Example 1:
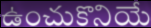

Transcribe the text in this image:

ఉంచుకొనియే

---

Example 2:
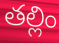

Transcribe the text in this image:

తల్లిం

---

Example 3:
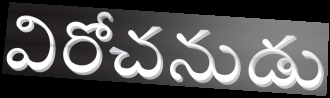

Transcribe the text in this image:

విరోచనుడు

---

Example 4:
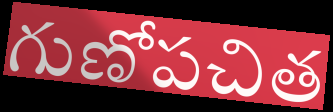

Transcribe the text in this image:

గుణోపచిత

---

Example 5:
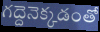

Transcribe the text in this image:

గద్దెనెక్కడంతో